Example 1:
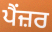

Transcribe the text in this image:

ਪੈਂਜ਼ਰ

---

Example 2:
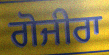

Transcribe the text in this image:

ਗੋਜੀਰਾ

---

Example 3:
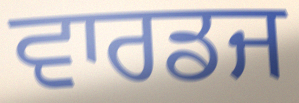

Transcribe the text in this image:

ਵਾਰਡਜ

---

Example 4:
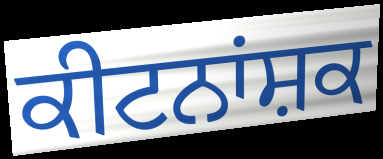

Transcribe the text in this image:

ਕੀਟਨਾਂਸ਼ਕ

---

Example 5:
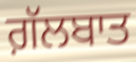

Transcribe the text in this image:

ਗ਼ੱਲਬਾਤ